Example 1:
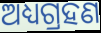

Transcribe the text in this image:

ଅଧ୍ୟଗ୍ରହଣ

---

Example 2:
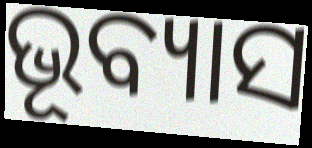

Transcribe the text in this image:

ଭୂବ୍ୟାସ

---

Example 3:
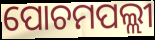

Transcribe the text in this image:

ପୋଚମପଲ୍ଲୀ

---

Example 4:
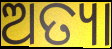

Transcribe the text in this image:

ଅତ୍ୟା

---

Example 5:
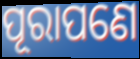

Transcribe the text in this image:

ପୂରାପଣେ